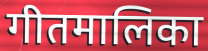
गीतमालिका